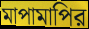
মাপামাপির